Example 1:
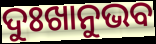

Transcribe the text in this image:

ଦୁଃଖାନୁଭବ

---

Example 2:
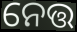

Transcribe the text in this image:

ନେତ୍ତ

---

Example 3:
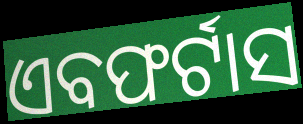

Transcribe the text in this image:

ଏବଫର୍ଟାସ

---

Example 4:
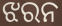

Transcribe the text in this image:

ଝରନ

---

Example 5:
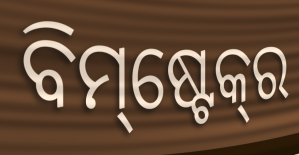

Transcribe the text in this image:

ବିମ୍‌ଷ୍ଟେକ୍‌ର